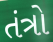
તંત્રો